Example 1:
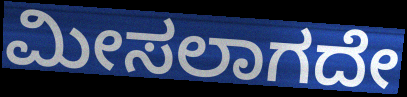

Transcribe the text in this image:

ಮೀಸಲಾಗದೇ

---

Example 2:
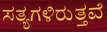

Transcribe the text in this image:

ಸತ್ಯಗಳಿರುತ್ತವೆ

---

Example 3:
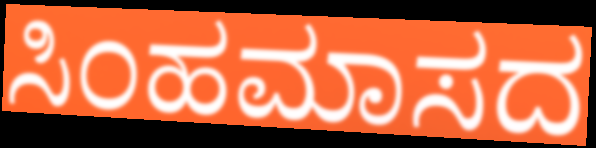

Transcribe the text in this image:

ಸಿಂಹಮಾಸದ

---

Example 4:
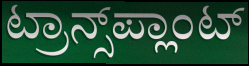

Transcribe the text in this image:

ಟ್ರಾನ್ಸ್‌ಪ್ಲಾಂಟ್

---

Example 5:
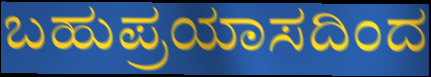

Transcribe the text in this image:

ಬಹುಪ್ರಯಾಸದಿಂದ